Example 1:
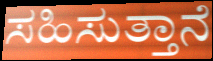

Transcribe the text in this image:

ಸಹಿಸುತ್ತಾನೆ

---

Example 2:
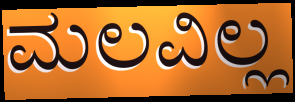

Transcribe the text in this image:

ಮಲವಿಲ್ಲ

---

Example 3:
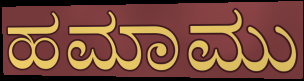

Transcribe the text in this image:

ಹಮಾಮು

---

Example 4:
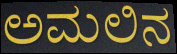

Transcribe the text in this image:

ಅಮಲಿನ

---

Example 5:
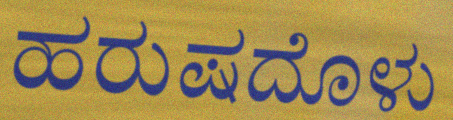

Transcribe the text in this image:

ಹರುಷದೊಳು